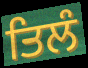
ਤਿਲੰ